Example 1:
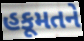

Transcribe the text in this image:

હકૂમતને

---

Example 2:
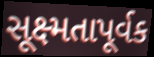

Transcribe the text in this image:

સૂક્ષ્મતાપૂર્વક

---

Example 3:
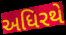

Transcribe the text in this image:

અધિરથે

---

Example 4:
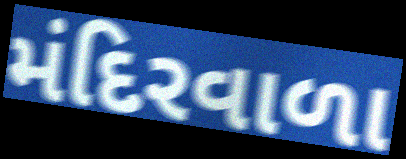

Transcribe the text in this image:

મંદિરવાળા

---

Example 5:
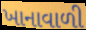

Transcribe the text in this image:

ખાનાવાળી